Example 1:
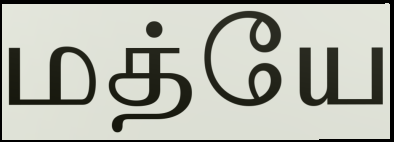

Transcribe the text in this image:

மத்யே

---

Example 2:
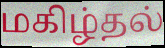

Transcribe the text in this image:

மகிழ்தல்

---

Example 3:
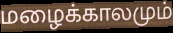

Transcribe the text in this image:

மழைக்காலமும்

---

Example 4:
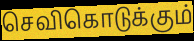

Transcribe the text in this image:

செவிகொடுக்கும்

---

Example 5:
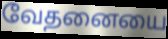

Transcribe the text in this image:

வேதனையை